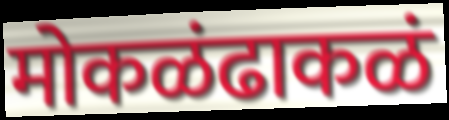
मोकळंढाकळं